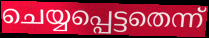
ചെയ്യപ്പെട്ടതെന്ന്